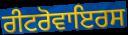
ਰੀਟਰੋਵਾਇਰਸ